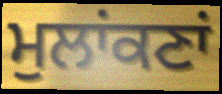
ਮੁਲਾਂਕਣਾਂ